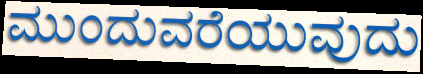
ಮುಂದುವರೆಯುವುದು